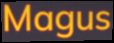
Magus